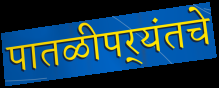
पातळीपर्यंतचे